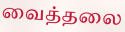
வைத்தலை